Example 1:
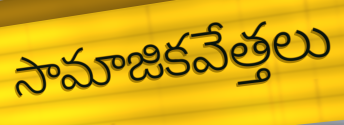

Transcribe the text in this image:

సామాజికవేత్తలు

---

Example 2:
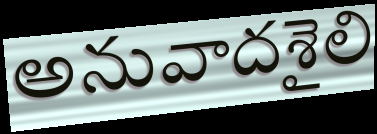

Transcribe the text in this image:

అనువాదశైలి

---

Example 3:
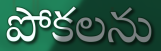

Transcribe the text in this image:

పోకలను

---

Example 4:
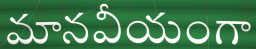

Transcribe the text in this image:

మానవీయంగా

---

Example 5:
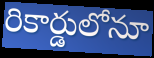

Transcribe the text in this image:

రికార్డులోనూ